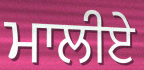
ਮਾਲੀਏ